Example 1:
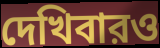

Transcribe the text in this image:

দেখিবারও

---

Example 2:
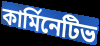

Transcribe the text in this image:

কার্মিনেটিভ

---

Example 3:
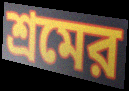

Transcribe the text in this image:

শ্রমের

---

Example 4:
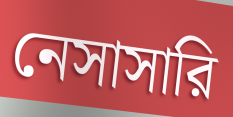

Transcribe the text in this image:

নেসাসারি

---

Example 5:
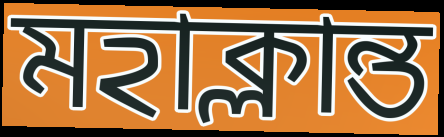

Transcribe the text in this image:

মহাক্লান্ত